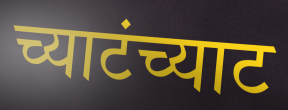
च्याटंच्याट